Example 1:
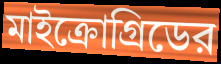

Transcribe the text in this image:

মাইক্রোগ্রিডের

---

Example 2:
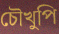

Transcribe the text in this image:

চৌখুপি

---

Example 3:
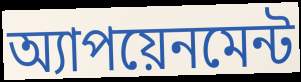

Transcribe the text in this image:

অ্যাপয়েনমেন্ট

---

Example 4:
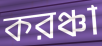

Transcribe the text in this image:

করঞ্চা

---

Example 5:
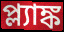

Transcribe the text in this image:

প্ল্যাঙ্ক